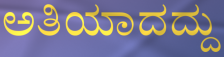
ಅತಿಯಾದದ್ದು